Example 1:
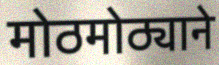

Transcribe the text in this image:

मोठमोठ्याने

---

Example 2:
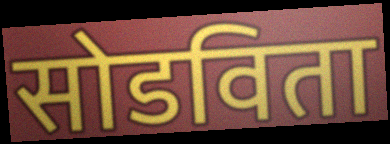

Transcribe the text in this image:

सोडविता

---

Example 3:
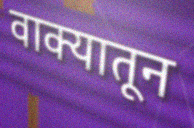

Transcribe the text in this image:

वाक्यातून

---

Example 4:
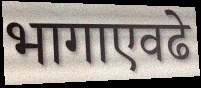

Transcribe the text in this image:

भागाएवढे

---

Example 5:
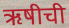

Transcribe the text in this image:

ॠषीची